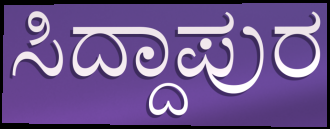
ಸಿದ್ದಾಪುರ